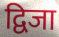
द्विजा